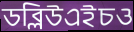
ডব্লিউএইচও